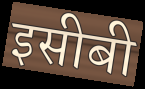
इसीबी